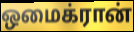
ஒமைக்ரான்